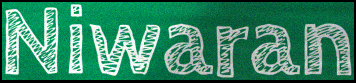
Niwaran